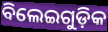
ବିଲେଇଗୁଡ଼ିକ